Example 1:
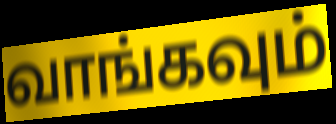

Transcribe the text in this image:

வாங்கவும்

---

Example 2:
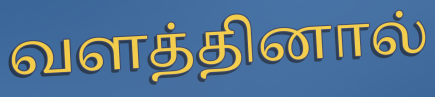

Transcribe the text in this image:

வளத்தினால்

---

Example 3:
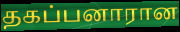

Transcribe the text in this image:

தகப்பனாரான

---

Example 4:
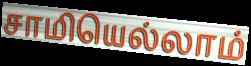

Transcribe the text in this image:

சாமியெல்லாம்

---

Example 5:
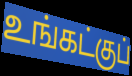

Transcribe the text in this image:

உங்கட்குப்